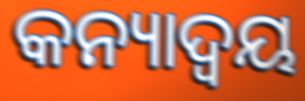
କନ୍ୟାଦ୍ୱୟ